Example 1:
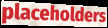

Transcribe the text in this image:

placeholders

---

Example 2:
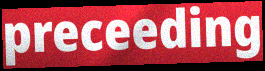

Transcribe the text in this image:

preceeding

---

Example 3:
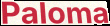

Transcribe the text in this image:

Paloma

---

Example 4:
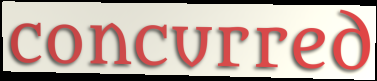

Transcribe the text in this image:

concurred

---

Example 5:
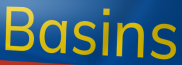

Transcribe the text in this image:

Basins